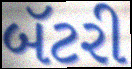
બૅટરી